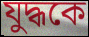
যুদ্ধকে